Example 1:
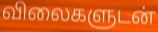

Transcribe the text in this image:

விலைகளுடன்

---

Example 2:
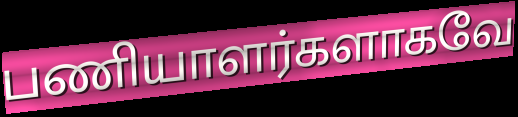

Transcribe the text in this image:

பணியாளர்களாகவே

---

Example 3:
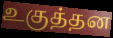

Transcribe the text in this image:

உகுத்தன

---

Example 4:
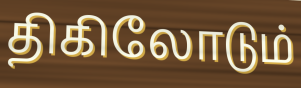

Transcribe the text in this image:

திகிலோடும்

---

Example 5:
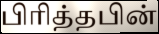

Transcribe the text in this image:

பிரித்தபின்